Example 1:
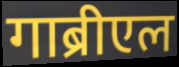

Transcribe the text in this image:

गाब्रीएल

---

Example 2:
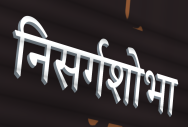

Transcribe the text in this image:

निसर्गशोभा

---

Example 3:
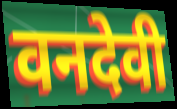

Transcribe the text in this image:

वनदेवी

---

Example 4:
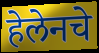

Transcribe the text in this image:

हेलेनचे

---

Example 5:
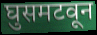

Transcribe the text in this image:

घुसमटवून